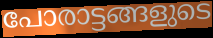
പോരാട്ടങ്ങളുടെ